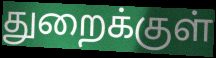
துறைக்குள்